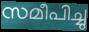
സമീപിച്ചു